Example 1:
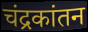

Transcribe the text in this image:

चंद्रकांतन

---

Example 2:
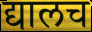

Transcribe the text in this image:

द्यालच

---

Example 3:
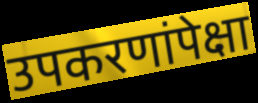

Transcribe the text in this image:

उपकरणांपेक्षा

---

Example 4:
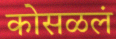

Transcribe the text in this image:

कोसळलं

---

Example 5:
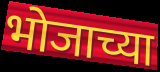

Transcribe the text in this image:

भोजाच्या